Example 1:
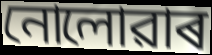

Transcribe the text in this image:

নোলোৱাৰ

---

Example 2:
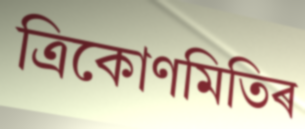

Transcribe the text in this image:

ত্ৰিকোণমিতিৰ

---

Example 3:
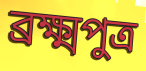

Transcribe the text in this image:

ব্ৰক্ষ্মপুত্ৰ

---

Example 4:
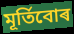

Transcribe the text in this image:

মূৰ্তিবোৰ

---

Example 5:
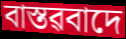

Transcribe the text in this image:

বাস্তৱবাদে